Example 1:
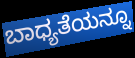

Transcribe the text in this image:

ಬಾಧ್ಯತೆಯನ್ನೂ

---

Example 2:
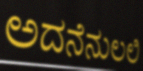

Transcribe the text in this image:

ಅದನೆನುಲಲಿ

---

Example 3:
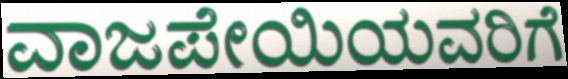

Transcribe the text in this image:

ವಾಜಪೇಯಿಯವರಿಗೆ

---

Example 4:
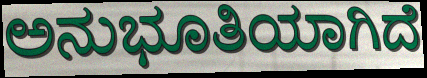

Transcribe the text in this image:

ಅನುಭೂತಿಯಾಗಿದೆ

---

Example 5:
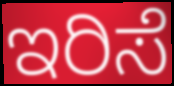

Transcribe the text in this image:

ಇರಿಸೆ